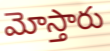
మోస్తారు